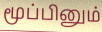
மூப்பினும்